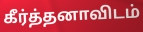
கீர்த்தனாவிடம்